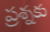
ప్రశ్నకు